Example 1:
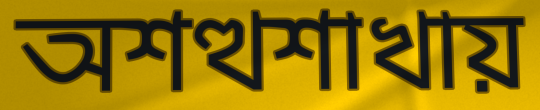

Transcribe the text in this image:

অশত্থশাখায়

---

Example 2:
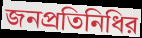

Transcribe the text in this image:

জনপ্রতিনিধির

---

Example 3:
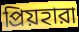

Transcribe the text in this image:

প্রিয়হারা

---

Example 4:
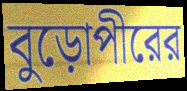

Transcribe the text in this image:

বুড়োপীরের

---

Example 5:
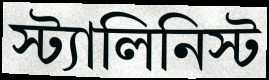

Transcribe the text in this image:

স্ট্যালিনিস্ট